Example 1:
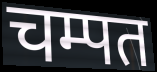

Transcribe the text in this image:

चम्पत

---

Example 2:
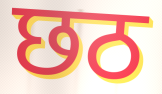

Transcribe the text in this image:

छठ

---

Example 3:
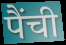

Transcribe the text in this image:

पैंची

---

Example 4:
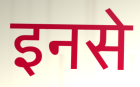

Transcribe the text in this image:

इनसे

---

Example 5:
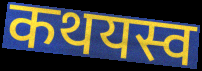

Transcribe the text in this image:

कथयस्व